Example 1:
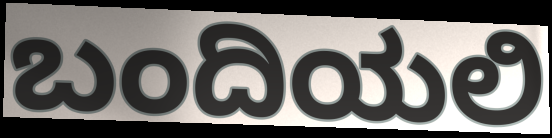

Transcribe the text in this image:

ಬಂದಿಯಲಿ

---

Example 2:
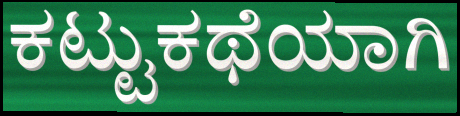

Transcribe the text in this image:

ಕಟ್ಟುಕಥೆಯಾಗಿ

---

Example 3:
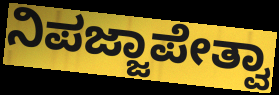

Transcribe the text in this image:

ನಿಪಜ್ಜಾಪೇತ್ವಾ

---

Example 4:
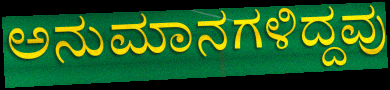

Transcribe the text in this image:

ಅನುಮಾನಗಳಿದ್ದವು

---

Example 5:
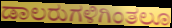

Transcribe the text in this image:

ಡಾಲರುಗಳಿಗಿಂತಲೂ